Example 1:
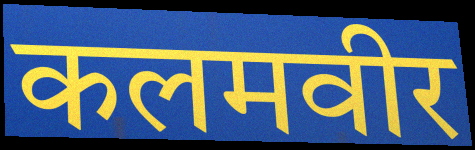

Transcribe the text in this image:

कलमवीर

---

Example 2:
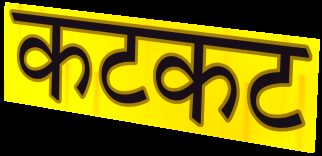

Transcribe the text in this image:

कटकट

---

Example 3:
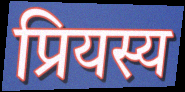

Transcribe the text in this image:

प्रियस्य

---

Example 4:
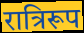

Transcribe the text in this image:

रात्रिरूप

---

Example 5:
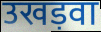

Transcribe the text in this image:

उखड़वा